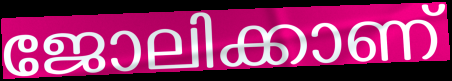
ജോലിക്കാണ്